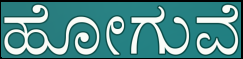
ಹೋಗುವೆ